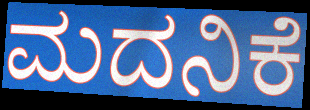
ಮದನಿಕೆ